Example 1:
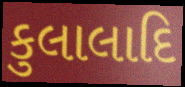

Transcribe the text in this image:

કુલાલાદિ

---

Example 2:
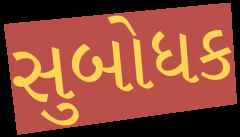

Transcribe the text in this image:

સુબોધક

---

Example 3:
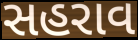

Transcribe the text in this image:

સહરાવ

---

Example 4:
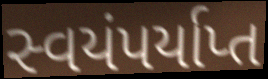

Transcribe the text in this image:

સ્વયંપર્યાપ્ત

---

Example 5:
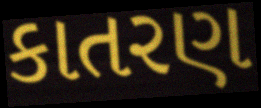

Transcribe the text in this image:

કાતરણ